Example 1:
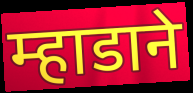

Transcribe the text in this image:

म्हाडाने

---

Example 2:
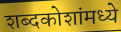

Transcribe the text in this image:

शब्दकोशांमध्ये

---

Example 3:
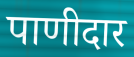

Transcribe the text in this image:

पाणीदार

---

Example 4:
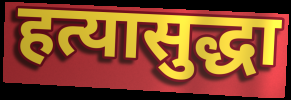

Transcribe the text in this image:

हत्यासुद्धा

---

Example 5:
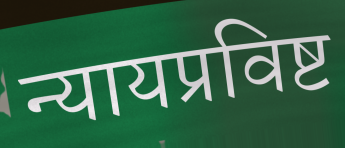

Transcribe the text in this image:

न्यायप्रविष्ट